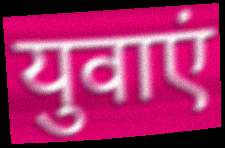
युवाएं